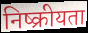
निष्क्रीयता